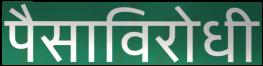
पैसाविरोधी